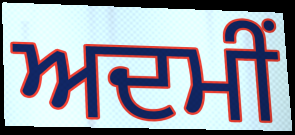
ਅਦਮੀਂ